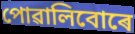
পোৱালিবোৰে